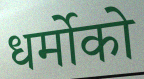
धर्मोको